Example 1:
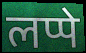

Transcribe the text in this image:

लप्पे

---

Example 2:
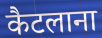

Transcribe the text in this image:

कैटलाना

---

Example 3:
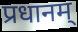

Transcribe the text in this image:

प्रधानम्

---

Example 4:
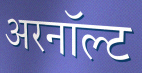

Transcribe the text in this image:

अरनॉल्ट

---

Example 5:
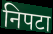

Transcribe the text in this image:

निपटा